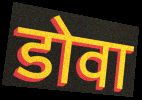
डोवा